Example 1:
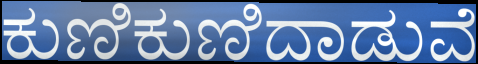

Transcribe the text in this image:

ಕುಣಿಕುಣಿದಾಡುವೆ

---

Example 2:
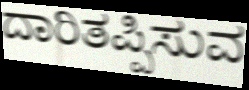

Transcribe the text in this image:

ದಾರಿತಪ್ಪಿಸುವ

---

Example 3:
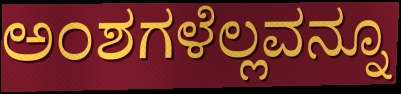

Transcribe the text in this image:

ಅಂಶಗಳೆಲ್ಲವನ್ನೂ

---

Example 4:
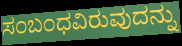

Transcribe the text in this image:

ಸಂಬಂಧವಿರುವುದನ್ನು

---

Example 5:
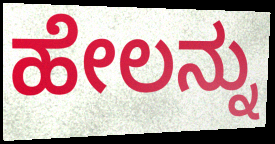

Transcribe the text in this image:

ಹೇಲನ್ನು